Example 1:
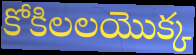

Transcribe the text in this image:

కోకిలలయొక్క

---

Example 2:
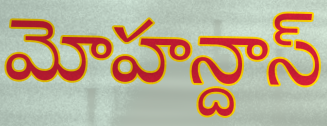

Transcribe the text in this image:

మోహన్దాస్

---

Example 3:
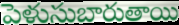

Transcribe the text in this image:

పెళుసుబారుతాయి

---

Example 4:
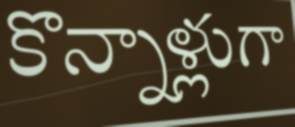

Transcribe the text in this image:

కొన్నాళ్లుగా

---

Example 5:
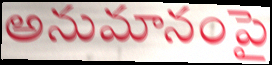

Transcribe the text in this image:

అనుమానంపై